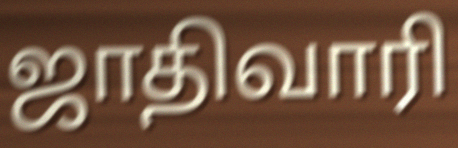
ஜாதிவாரி